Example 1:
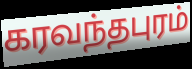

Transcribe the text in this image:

கரவந்தபுரம்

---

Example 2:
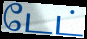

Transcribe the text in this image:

டேட்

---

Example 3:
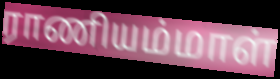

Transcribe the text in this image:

ராணியம்மாள்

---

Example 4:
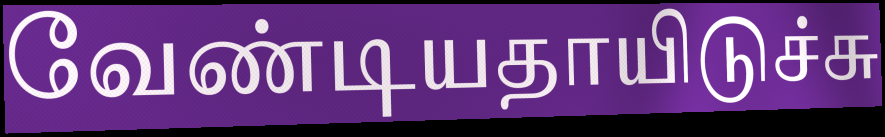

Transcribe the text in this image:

வேண்டியதாயிடுச்சு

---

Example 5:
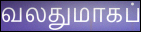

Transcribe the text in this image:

வலதுமாகப்